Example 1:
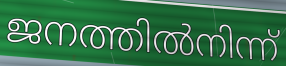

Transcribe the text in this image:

ജനത്തിൽനിന്ന്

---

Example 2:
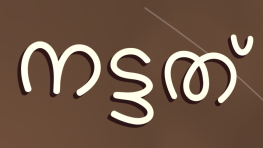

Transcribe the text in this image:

നട്ടത്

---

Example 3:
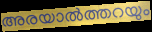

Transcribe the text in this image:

അരയാൽത്തറയും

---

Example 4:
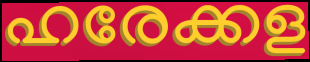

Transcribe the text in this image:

ഹരേക്കള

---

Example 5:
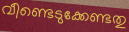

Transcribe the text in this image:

വീണ്ടെടുക്കേണ്ടതു